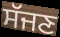
ਸੱਜਣ